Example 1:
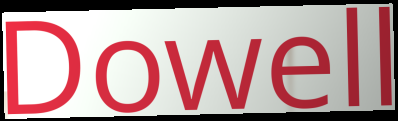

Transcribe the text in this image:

Dowell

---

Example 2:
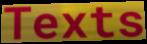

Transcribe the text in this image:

Texts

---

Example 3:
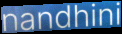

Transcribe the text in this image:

nandhini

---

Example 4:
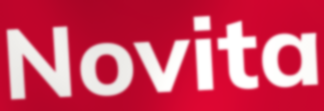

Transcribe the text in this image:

Novita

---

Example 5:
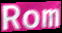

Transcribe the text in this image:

Rom